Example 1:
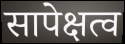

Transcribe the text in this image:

सापेक्षत्व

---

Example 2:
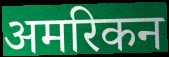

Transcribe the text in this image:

अमरिकन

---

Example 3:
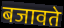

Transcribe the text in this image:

बजावते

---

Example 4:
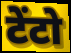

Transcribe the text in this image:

टेंटो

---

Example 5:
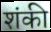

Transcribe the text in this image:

शंकी